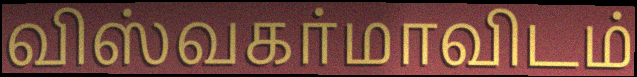
விஸ்வகர்மாவிடம்